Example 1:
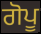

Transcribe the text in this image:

ਗੋਪੂ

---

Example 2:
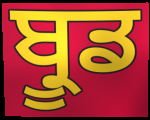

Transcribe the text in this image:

ਬ੍ਰੂਡ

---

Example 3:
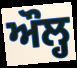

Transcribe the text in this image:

ਔਲ੍ਹ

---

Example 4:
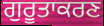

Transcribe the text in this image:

ਗੁਰੂਤਾਕਰਣ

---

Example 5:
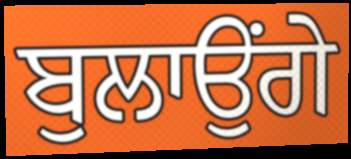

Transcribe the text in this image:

ਬੁਲਾਉਂਗੇ